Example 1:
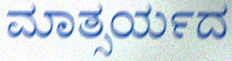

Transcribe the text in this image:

ಮಾತ್ಸರ್ಯದ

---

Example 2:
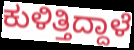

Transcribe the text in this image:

ಕುಳಿತ್ತಿದ್ದಾಳೆ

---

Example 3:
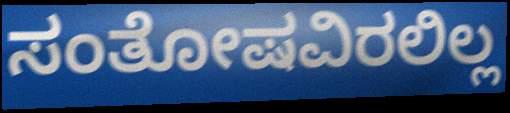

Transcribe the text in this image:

ಸಂತೋಷವಿರಲಿಲ್ಲ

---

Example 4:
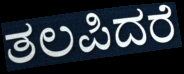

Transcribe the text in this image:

ತಲಪಿದರೆ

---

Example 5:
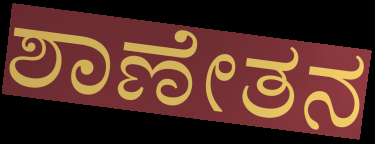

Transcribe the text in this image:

ಶಾಣೇತನ